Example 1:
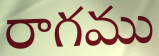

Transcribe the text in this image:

రాగము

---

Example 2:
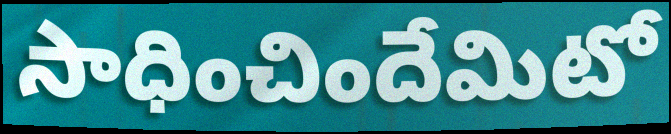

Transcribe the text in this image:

సాధించిందేమిటో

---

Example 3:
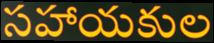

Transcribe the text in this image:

సహాయకుల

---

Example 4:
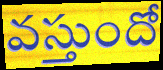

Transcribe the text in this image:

వస్తుందో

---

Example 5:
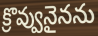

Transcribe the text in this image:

క్రొవ్వునైనను